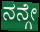
ನನ್ಗೇ